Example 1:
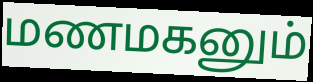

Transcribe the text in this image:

மணமகனும்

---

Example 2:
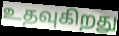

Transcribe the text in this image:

உதவுகிறது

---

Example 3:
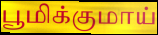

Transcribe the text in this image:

பூமிக்குமாய்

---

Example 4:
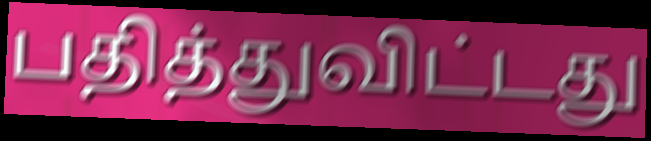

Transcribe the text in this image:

பதித்துவிட்டது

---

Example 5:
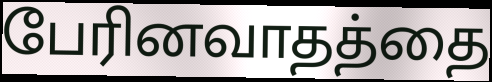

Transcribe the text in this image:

பேரினவாதத்தை